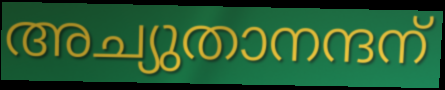
അച്യുതാനന്ദന്